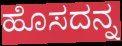
ಹೊಸದನ್ನ